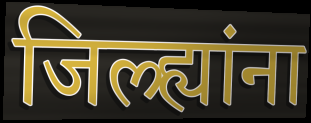
जिल्ह्यांना